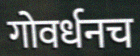
गोवर्धनच